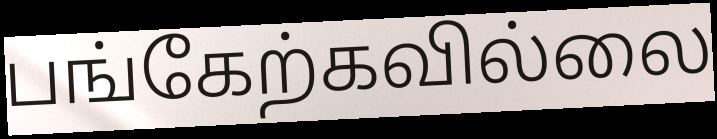
பங்கேற்கவில்லை